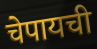
चेपायची